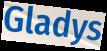
Gladys